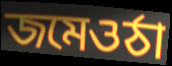
জমেওঠা